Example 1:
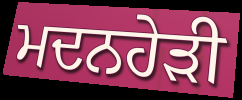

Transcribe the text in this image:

ਮਦਨਹੇੜੀ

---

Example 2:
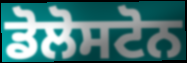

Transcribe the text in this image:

ਡੋਲੋਸਟੋਨ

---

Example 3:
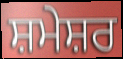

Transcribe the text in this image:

ਸ਼ਮੇਸ਼ਰ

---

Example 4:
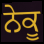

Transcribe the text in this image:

ਨੇਕੂ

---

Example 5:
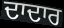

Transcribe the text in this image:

ਦਾਦਾਰ